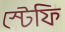
স্টেফি